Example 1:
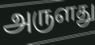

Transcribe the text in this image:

அருளது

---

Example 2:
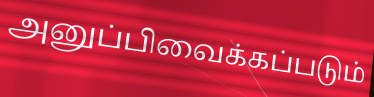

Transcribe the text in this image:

அனுப்பிவைக்கப்படும்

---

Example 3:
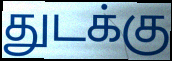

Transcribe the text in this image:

துடக்கு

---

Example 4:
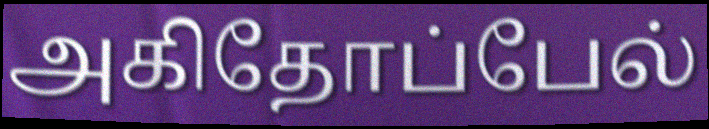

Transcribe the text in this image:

அகிதோப்பேல்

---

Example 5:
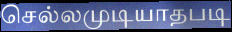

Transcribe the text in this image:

செல்லமுடியாதபடி